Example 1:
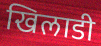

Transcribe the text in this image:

खिलाडी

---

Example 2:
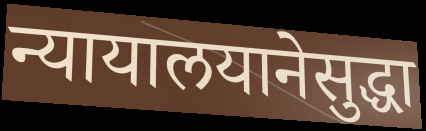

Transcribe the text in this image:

न्यायालयानेसुद्धा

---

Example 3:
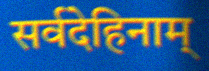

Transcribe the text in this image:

सर्वदेहिनाम्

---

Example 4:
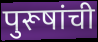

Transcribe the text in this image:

पुरूषांची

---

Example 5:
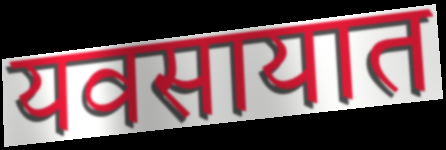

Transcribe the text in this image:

यवसायात